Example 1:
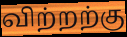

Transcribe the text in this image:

விற்றற்கு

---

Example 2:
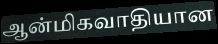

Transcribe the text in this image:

ஆன்மிகவாதியான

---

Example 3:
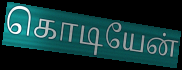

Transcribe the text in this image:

கொடியேன்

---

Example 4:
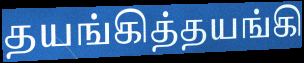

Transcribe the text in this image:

தயங்கித்தயங்கி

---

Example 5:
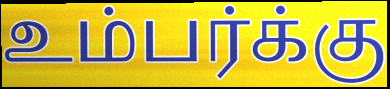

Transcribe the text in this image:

உம்பர்க்கு